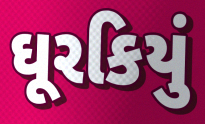
ઘૂરકિયું